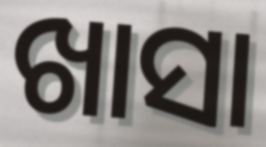
ଖାସା